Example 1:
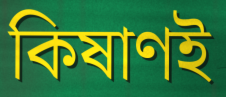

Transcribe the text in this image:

কিষাণই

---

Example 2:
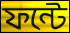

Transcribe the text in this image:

ফন্টে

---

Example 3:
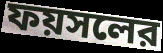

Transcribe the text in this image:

ফয়সলের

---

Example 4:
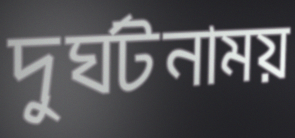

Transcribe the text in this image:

দুর্ঘটনাময়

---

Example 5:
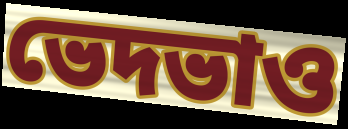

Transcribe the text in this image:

ভেদভাও